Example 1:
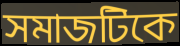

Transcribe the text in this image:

সমাজটিকে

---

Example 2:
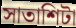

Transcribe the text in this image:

সাতাশিটা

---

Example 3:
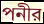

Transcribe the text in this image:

পনীর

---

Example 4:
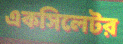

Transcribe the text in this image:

একসিলেটর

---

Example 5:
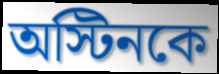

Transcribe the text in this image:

অস্টিনকে